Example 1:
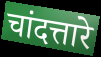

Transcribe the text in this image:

चांदत्तारे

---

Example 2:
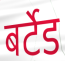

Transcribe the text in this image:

बर्टेड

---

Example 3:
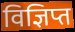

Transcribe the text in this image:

विज्ञिप्त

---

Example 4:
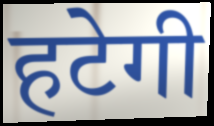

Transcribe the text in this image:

हटेगी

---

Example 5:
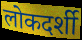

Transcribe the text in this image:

लोकदर्शी